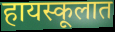
हायस्कूलात